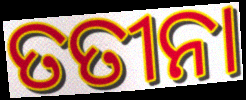
ତତୀନା